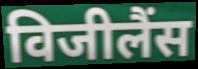
विजीलैंस